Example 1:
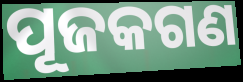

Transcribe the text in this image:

ପୂଜକଗଣ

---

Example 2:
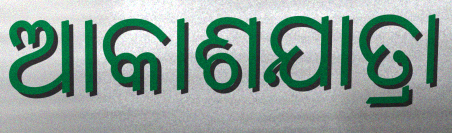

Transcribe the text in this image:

ଆକାଶଯାତ୍ରା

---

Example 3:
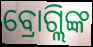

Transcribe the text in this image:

ବ୍ରୋଗ୍ଲିଙ୍କ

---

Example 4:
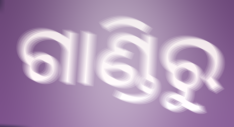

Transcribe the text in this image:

ଗାଣ୍ଡିରୁ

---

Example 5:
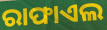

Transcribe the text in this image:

ରାଫାଏଲ